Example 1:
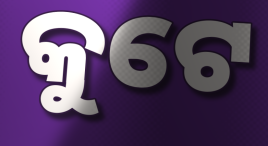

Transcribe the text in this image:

କୁଟେ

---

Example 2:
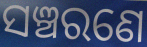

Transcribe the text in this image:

ସଞ୍ଚରଣେ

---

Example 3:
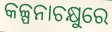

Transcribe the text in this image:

କଳ୍ପନାଚକ୍ଷୁରେ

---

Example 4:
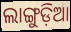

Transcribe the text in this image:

ଲାଙ୍ଗୁଡ଼ିଆ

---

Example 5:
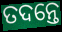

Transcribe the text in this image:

ତଦନ୍ତେ